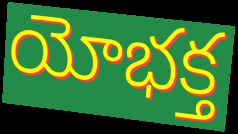
యోభక్త